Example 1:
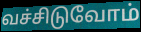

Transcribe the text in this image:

வச்சிடுவோம்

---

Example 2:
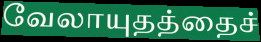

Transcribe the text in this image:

வேலாயுதத்தைச்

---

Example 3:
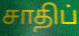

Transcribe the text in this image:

சாதிப்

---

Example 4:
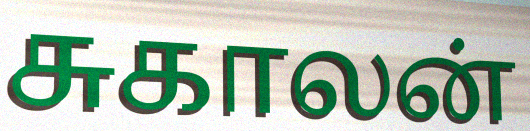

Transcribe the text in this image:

சுகாலன்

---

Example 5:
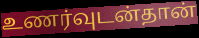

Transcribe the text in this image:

உணர்வுடன்தான்